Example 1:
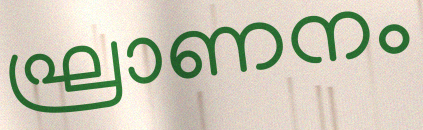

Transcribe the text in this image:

ഘ്രാണനം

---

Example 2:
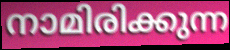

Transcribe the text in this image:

നാമിരിക്കുന്ന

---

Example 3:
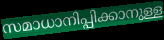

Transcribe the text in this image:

സമാധാനിപ്പിക്കാനുള്ള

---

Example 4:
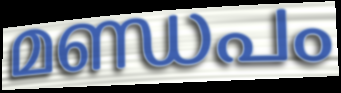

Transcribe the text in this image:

മണ്ഡപം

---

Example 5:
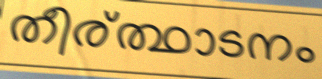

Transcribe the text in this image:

തീര്ത്ഥാടനം